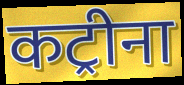
कट्रीना